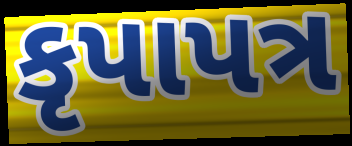
કૃપાપત્ર